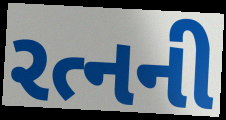
રત્નની